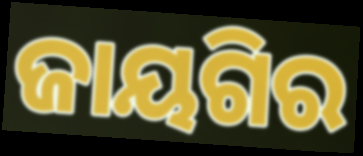
ଜାୟଗିର